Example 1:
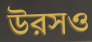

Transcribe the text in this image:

উরসও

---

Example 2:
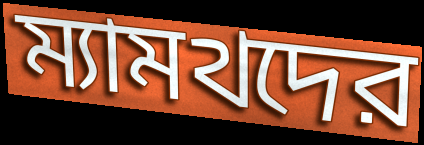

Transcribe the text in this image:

ম্যামথদের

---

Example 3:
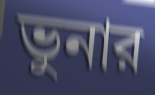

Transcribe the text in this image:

ভুনার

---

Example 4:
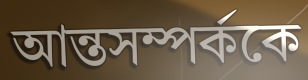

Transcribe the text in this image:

আন্তসম্পর্ককে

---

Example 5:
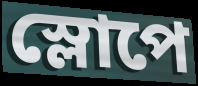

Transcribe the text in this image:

স্লোপে